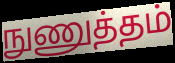
நுணுத்தம்